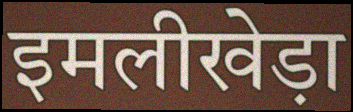
इमलीखेड़ा